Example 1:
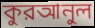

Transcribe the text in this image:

কুরআনুল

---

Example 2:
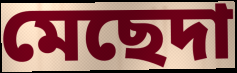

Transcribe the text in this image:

মেছেদা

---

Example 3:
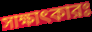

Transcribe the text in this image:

সাক্ষাৎকারঃ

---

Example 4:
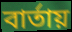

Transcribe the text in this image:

বার্তায়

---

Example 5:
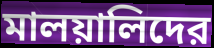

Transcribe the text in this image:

মালয়ালিদের